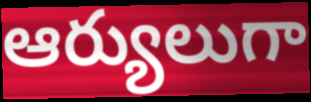
ఆర్యులుగా